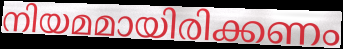
നിയമമായിരിക്കണം